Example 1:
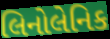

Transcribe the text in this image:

લિનોલેનિક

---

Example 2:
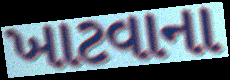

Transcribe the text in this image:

ખાટવાના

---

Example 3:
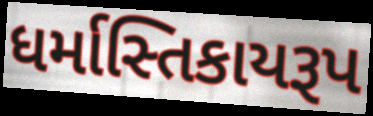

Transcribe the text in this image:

ધર્માસ્તિકાયરૂપ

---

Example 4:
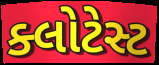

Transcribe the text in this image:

ક્લોટેસ્ટ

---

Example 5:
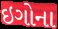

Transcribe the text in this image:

ઇગોના